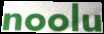
noolu